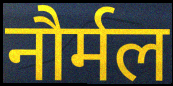
नौर्मल